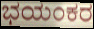
ಭಯಂಕರ